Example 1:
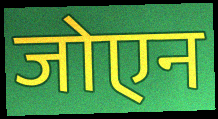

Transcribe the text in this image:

जोएन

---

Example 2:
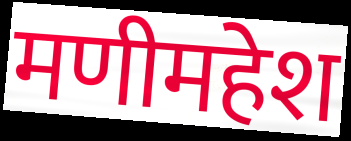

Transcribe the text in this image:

मणीमहेश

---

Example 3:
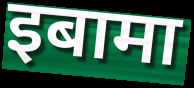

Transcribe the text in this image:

इबामा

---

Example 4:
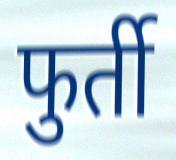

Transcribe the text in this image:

फुर्ती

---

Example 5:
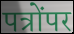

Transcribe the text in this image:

पत्रोंपर